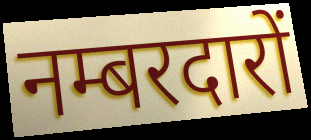
नम्बरदारों